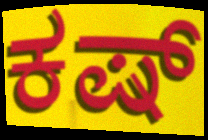
ಕಷ್